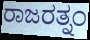
ರಾಜರತ್ನಂ